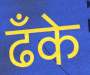
ढँके